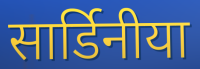
सार्डिनीया